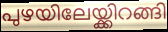
പുഴയിലേയ്ക്കിറങ്ങി